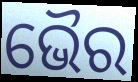
ଭୈର